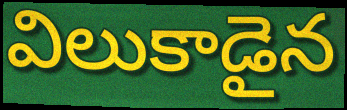
విలుకాడైన